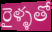
రైళ్ళతో